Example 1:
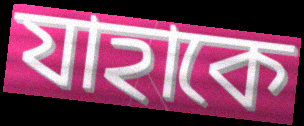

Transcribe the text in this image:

যাহাকে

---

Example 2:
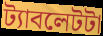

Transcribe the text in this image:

ট্যাবলেটটা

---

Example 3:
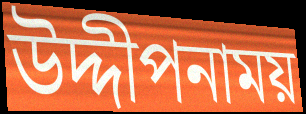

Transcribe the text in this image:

উদ্দীপনাময়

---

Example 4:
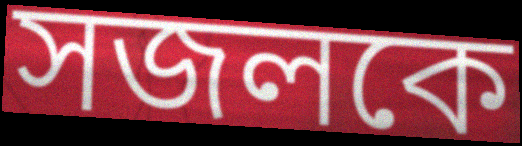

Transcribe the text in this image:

সজলকে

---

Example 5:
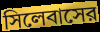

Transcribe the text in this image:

সিলেবাসের